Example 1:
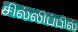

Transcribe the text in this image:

சில்லிப்பில்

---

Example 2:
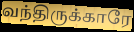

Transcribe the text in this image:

வந்திருக்காரே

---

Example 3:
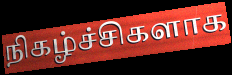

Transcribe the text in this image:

நிகழ்ச்சிகளாக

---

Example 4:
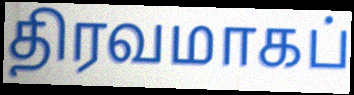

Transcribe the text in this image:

திரவமாகப்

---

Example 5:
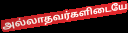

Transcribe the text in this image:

அல்லாதவர்களிடையே